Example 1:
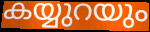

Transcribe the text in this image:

കയ്യുറയും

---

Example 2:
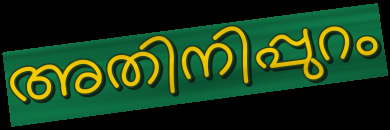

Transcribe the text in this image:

അതിനിപ്പുറം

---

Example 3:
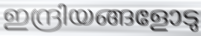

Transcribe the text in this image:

ഇന്ദ്രിയങ്ങളോടു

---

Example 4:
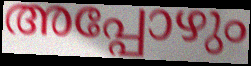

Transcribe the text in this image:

അപ്പോഴും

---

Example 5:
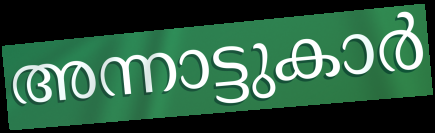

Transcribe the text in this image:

അന്നാട്ടുകാർ